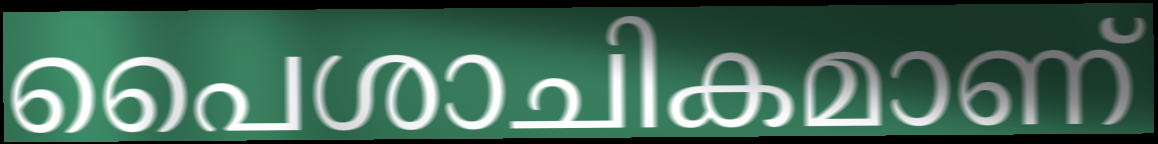
പൈശാചികമാണ്